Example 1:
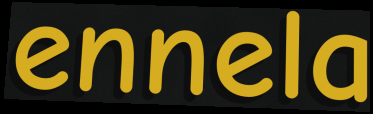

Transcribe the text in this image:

ennela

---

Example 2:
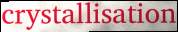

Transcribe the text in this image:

crystallisation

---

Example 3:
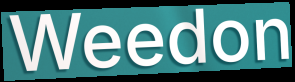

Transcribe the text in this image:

Weedon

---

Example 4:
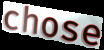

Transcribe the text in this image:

chose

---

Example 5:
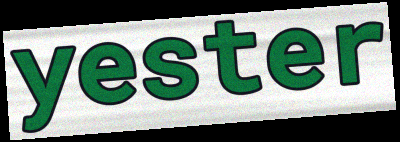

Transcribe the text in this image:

yester